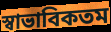
স্বাভাবিকতম